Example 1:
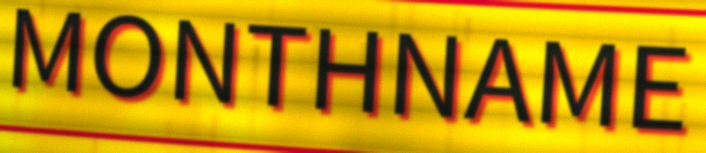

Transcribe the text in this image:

MONTHNAME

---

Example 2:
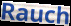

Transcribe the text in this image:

Rauch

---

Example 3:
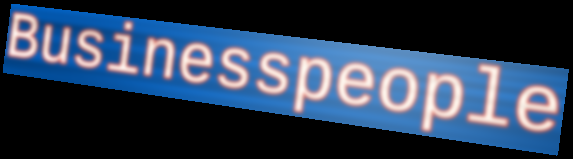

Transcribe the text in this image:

Businesspeople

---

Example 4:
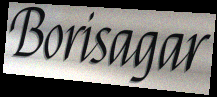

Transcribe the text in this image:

Borisagar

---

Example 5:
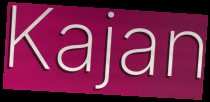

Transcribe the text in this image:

Kajan